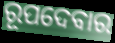
ରୂପଦେବାର